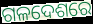
ଗଳଦେଶରେ